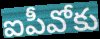
ఐపీవోకు